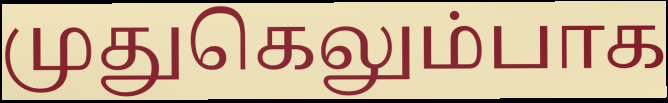
முதுகெலும்பாக